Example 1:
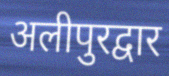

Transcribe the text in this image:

अलीपुरद्वार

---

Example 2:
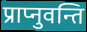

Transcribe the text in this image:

प्राप्नुवन्ति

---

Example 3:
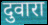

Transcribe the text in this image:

दुवारा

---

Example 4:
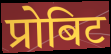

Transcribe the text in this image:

प्रोबिट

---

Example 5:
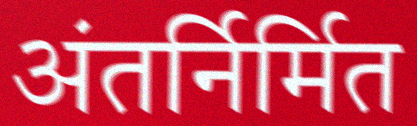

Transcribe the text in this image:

अंतर्निर्मित